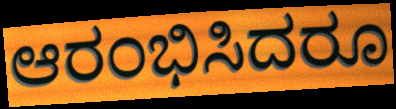
ಆರಂಭಿಸಿದರೂ